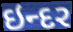
ઇન્દર